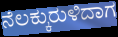
ನೆಲಕ್ಕುರುಳಿದಾಗ